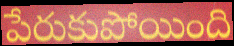
పేరుకుపోయింది